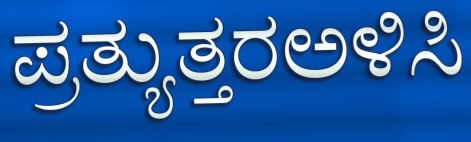
ಪ್ರತ್ಯುತ್ತರಅಳಿಸಿ